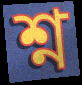
শ্ন